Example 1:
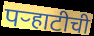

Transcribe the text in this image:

पऱ्हाटीची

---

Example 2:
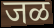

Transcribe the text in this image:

जळ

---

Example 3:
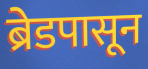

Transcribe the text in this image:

ब्रेडपासून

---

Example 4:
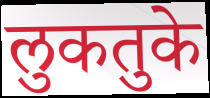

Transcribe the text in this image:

लुकतुके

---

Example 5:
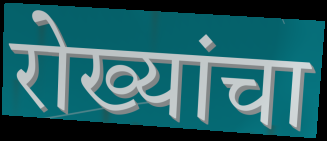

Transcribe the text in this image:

रोख्यांचा